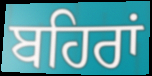
ਬਹਿਰਾਂ